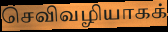
செவிவழியாகக்